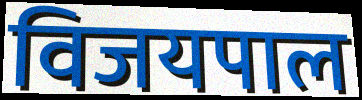
विजयपाल